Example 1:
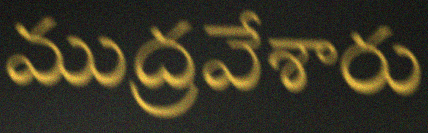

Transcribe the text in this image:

ముద్రవేశారు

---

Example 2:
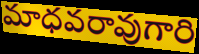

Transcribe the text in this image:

మాధవరావుగారి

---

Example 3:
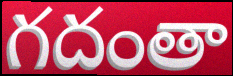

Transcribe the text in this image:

గదంతా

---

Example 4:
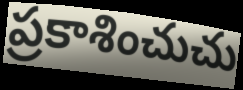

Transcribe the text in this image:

ప్రకాశించుచు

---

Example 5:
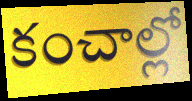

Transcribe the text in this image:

కంచాల్లో